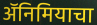
ॲनिमियाचा